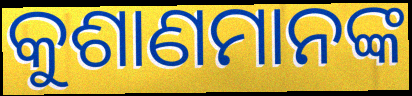
କୁଶାଣମାନଙ୍କ